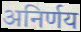
अनिर्णय